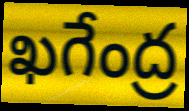
ఖగేంద్ర